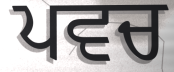
ਪਵਚ